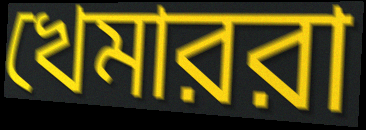
খেমাররা